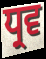
ਧ੍ਰਵ